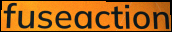
fuseaction